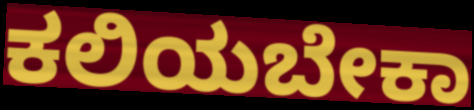
ಕಲಿಯಬೇಕಾ